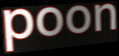
poon